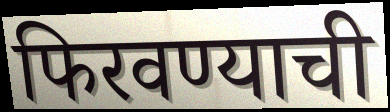
फिरवण्याची